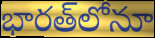
భారత్‌లోనూ